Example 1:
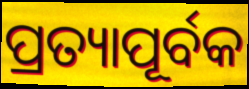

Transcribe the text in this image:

ପ୍ରତ୍ୟାପୂର୍ବକ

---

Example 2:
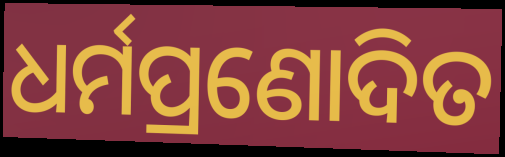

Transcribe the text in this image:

ଧର୍ମପ୍ରଣୋଦିତ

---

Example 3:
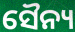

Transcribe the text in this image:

ସୈନ୍ୟ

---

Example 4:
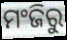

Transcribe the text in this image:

ମଂଜିରୁ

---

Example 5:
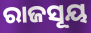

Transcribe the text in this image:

ରାଜସୂୟ